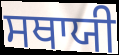
ਸਥਾਯੀ